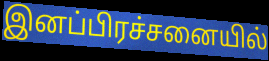
இனப்பிரச்சனையில்